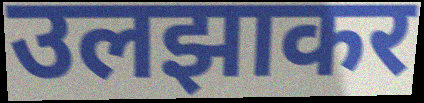
उलझाकर